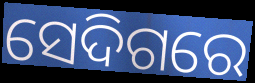
ସେଦିଗରେ